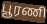
பூரணி